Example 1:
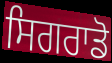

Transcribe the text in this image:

ਸਿਗਰਾਡੋ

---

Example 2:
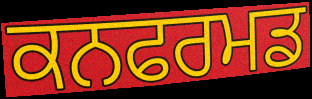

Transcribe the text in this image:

ਕਨਫਰਮਡ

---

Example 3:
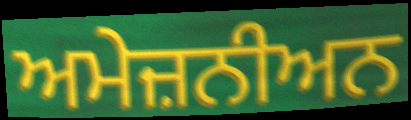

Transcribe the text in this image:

ਅਮੇਜ਼ਨੀਅਨ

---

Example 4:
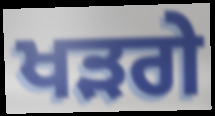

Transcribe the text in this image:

ਖੜਗੇ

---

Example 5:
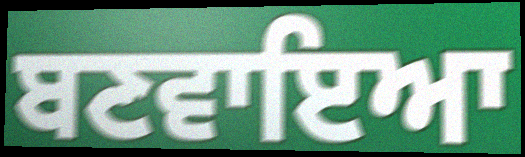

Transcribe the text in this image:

ਬਣਵਾਇਆ